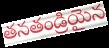
తనతండ్రియైన